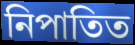
নিপাতিত